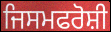
ਜਿਸਮਫਰੋਸ਼ੀ